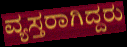
ವ್ಯಸ್ತರಾಗಿದ್ದರು